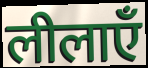
लीलाएँ